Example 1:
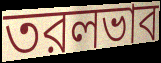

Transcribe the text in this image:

তরলভাব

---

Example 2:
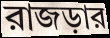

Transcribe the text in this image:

রাজড়ার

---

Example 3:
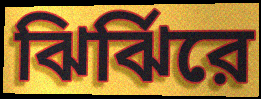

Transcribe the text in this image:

ঝির্ঝিরে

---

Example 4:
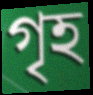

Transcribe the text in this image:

গৃহ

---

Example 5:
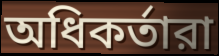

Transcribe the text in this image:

অধিকর্তারা